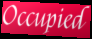
Occupied